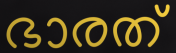
ഭാരത്